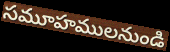
సమూహములనుండి